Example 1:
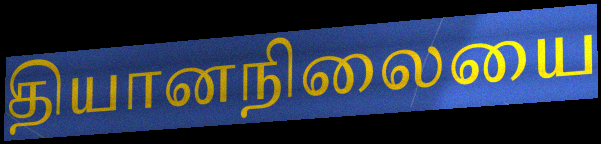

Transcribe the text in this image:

தியானநிலையை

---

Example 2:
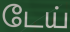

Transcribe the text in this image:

டேய்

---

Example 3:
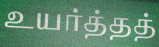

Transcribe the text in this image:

உயர்த்தத்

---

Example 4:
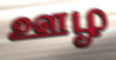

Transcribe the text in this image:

ஊழ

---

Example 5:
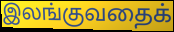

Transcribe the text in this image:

இலங்குவதைக்